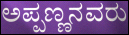
ಅಪ್ಪಣ್ಣನವರು